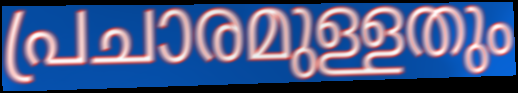
പ്രചാരമുള്ളതും